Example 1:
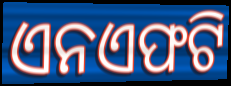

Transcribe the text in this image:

ଏନଏଫଟି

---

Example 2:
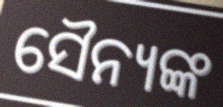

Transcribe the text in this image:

ସୈନ୍ୟଙ୍କ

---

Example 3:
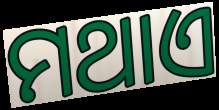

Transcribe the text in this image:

ମଥାଏ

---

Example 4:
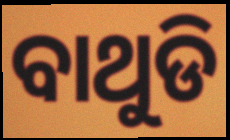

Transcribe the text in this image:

ବାଥୁଡି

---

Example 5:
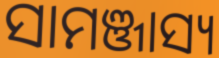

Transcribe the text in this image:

ସାମଞ୍ଜାସ୍ୟ